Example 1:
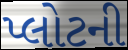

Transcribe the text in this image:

પ્લોટની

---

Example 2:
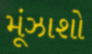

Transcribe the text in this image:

મૂંઝાશો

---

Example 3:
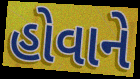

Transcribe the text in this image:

હોવાને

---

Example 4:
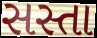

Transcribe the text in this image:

સસ્તા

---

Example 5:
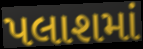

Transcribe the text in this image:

પલાશમાં